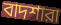
বাদশারা